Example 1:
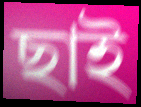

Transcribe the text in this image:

ছাই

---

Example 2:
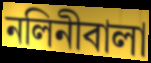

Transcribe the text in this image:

নলিনীবালা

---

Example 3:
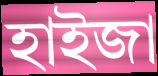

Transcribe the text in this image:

হাইজা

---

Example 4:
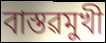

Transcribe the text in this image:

বাস্তৱমুখী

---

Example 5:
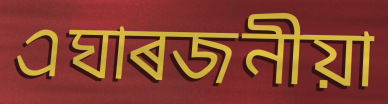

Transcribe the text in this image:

এঘাৰজনীয়া